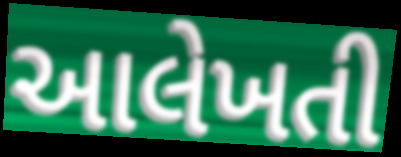
આલેખતી